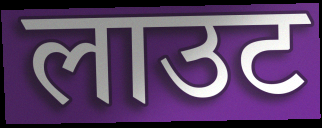
लाउट